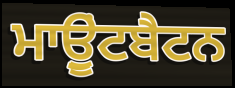
ਮਾਉੂਂਟਬੈਟਨ